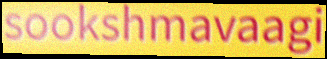
sookshmavaagi